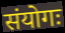
संयोगः